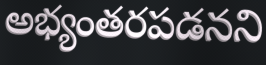
అభ్యంతరపడనని